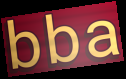
bba